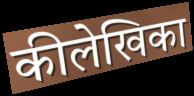
कीलेखिका